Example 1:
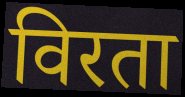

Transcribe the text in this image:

विरता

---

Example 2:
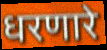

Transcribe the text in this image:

धरणारे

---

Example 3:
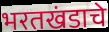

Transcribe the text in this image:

भरतखंडाचे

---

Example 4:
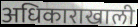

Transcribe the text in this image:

अधिकाराखाली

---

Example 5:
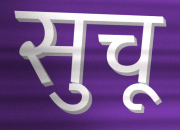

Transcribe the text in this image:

सुचू